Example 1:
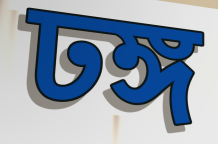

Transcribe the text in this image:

ঢঙ্গ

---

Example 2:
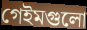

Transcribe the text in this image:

গেইমগুলো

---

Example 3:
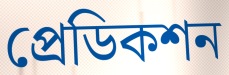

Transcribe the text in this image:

প্রেডিকশন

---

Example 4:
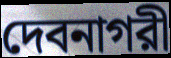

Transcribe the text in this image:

দেবনাগরী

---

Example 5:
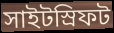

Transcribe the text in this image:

সাইটস্রিফট